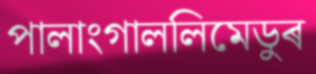
পালাংগাললিমেডুৰ